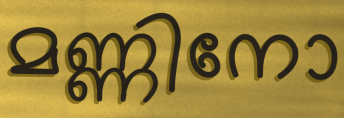
മണ്ണിനോ